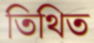
তিথিত